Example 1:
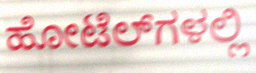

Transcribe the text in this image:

ಹೋಟೆಲ್‍ಗಳಲ್ಲಿ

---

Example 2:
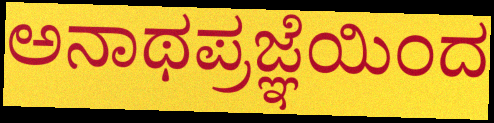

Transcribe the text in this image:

ಅನಾಥಪ್ರಜ್ಞೆಯಿಂದ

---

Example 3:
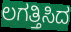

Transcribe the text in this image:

ಲಗತ್ತಿಸಿದ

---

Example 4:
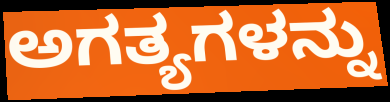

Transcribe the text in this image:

ಅಗತ್ಯಗಳನ್ನು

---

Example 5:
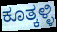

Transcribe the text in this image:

ಕೂತ್ಕಳ್ಳಿ